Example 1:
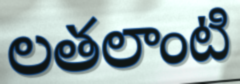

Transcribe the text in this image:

లతలాంటి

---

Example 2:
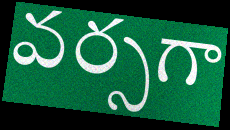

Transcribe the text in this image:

వర్సగా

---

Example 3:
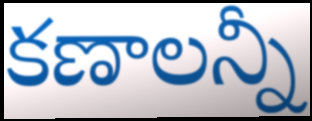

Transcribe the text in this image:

కణాలన్నీ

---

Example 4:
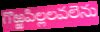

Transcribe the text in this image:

గొఱ్ఱపిల్లలవలెను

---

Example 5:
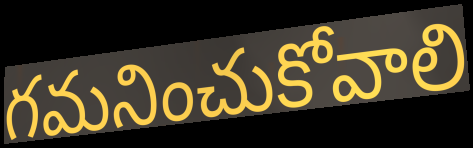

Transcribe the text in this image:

గమనించుకోవాలి